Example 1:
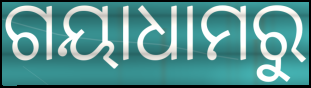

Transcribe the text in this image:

ଗୟାଧାମରୁ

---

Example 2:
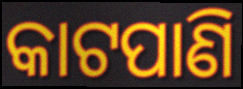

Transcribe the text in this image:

କାଟପାଣି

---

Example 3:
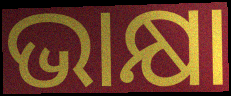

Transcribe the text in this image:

ଭାକ୍ଷା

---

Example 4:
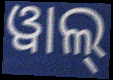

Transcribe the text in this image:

ୱାଲ୍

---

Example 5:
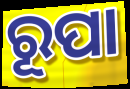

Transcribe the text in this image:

ରୂପା